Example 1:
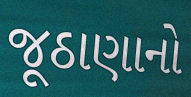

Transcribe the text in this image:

જૂઠાણાનો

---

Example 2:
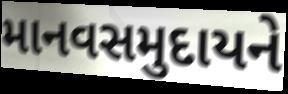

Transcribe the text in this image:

માનવસમુદાયને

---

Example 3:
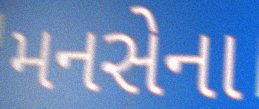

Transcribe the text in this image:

મનસેના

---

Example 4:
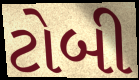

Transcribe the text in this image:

ટોબી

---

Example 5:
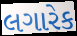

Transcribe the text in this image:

લગારેક